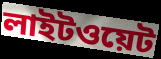
লাইটওয়েট